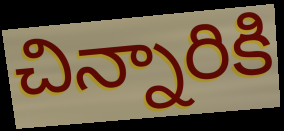
చిన్నారికి